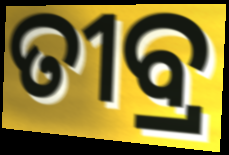
ତୀବ୍ର